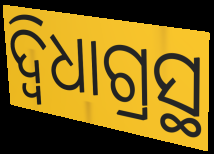
ଦ୍ବିଧାଗ୍ରସ୍ଥ